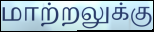
மாற்றலுக்கு